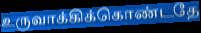
உருவாக்கிக்கொண்டதே